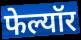
फेल्यॉर